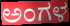
ಅಂಗಳ